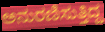
ಅನುರಣಿಸುತ್ತಿದ್ದ